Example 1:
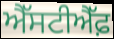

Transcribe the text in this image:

ਐੱਸਟੀਐੱਫ਼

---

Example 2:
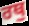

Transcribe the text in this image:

ਰਥੁ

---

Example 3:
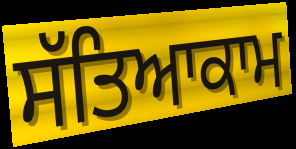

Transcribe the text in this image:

ਸੱਤਿਆਕਾਮ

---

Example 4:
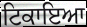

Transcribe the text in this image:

ਟਿਕਾਇਆ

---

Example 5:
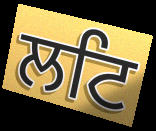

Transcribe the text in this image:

ਲਟਿ